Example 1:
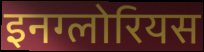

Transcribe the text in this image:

इनग्लोरियस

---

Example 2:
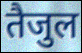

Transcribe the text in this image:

तैजुल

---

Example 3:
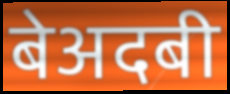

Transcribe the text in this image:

बेअदबी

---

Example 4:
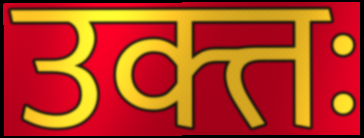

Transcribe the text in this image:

उक्तः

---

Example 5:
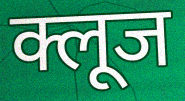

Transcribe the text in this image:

क्लूज